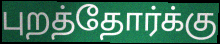
புறத்தோர்க்கு